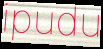
ipudu